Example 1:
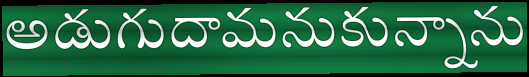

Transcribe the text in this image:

అడుగుదామనుకున్నాను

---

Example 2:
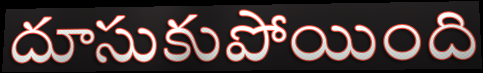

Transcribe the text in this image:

దూసుకుపోయింది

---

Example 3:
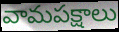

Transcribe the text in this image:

వామపక్షాలు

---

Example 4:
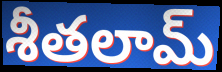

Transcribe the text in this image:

శీతలామ్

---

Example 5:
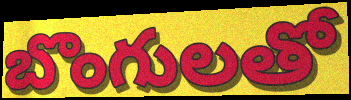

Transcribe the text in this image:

బొంగులతో